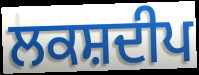
ਲਕਸ਼ਦੀਪ